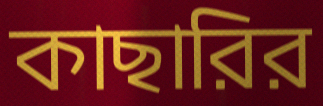
কাছারির